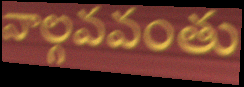
నాల్గవవంతు